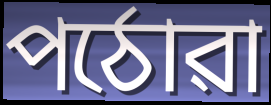
পঠোৱা